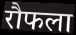
रौफला